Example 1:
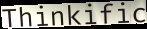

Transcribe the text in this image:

Thinkific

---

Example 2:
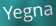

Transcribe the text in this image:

Yegna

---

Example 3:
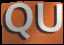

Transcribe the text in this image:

QU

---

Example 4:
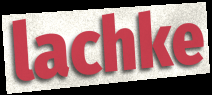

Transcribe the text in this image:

lachke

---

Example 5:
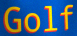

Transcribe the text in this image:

Golf